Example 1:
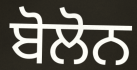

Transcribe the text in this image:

ਬੋਲੋਨ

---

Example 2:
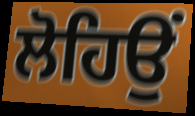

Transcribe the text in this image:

ਲੋਹਿਉਂ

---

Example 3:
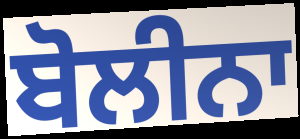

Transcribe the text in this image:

ਬੋਲੀਨਾ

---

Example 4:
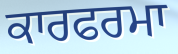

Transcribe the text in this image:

ਕਾਰਫਰਮਾ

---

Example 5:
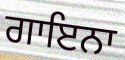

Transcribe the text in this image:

ਗਾਇਨਾ